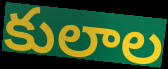
కులాల